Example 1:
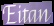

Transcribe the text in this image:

Eitan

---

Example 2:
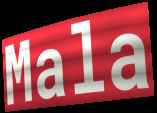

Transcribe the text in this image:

Mala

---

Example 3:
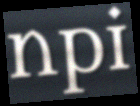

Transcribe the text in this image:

npi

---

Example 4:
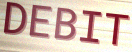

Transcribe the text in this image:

DEBIT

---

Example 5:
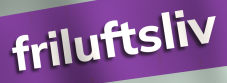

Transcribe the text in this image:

friluftsliv